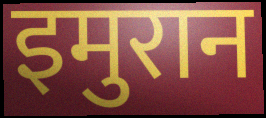
इमुरान